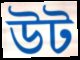
উট